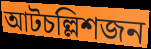
আটচল্লিশজন